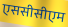
एससीसीएम